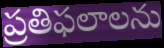
ప్రతిఫలాలను